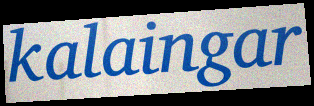
kalaingar